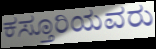
ಕಸ್ತೂರಿಯವರು